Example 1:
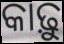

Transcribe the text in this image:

କାଢ଼ୁ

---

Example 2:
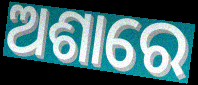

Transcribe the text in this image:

ଅଶାରେ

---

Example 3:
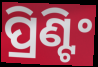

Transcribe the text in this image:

ପ୍ରିଣ୍ଟିଂ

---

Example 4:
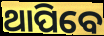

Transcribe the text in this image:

ଥାପିବେ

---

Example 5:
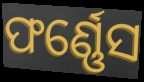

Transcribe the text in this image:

ଫର୍ଣ୍ଣେସ